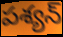
పశ్యన్